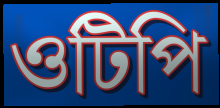
ওটিপি